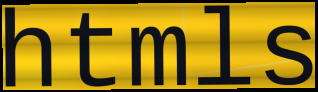
htmls